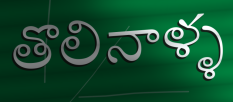
తొలినాళ్ళ